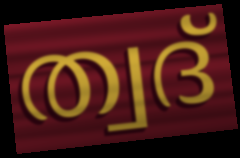
ത്വദ്